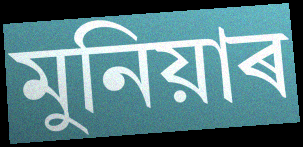
মুনিয়াৰ